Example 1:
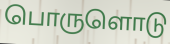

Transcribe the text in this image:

பொருளொடு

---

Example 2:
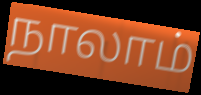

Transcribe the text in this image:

நாலாம்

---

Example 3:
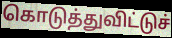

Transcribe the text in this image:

கொடுத்துவிட்டுச்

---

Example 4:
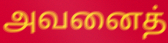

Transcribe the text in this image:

அவனைத்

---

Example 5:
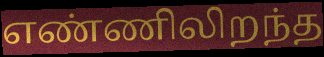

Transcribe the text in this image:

எண்ணிலிறந்த